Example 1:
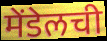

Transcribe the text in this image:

मेंडेलची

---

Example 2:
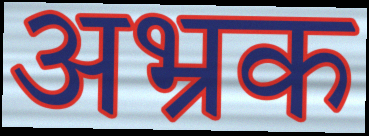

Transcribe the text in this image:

अभ्रक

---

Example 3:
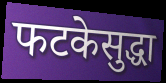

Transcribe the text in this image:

फटकेसुद्धा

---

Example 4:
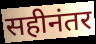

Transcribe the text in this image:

सहीनंतर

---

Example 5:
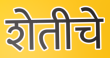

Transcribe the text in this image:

शेतीचे